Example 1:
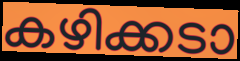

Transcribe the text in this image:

കഴിക്കടാ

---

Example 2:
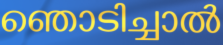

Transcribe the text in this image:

ഞൊടിച്ചാൽ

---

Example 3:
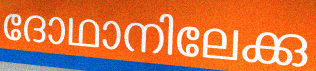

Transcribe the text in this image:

ദോഥാനിലേക്കു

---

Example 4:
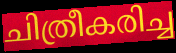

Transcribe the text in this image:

ചിത്രീകരിച്ച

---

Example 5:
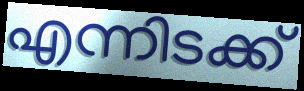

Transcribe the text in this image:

എന്നിടക്ക്